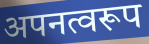
अपनत्वरूप